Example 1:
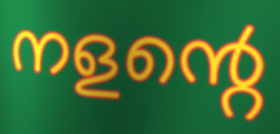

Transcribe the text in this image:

നളന്റെ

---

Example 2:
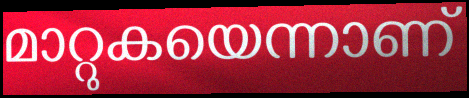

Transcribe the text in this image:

മാറ്റുകയെന്നാണ്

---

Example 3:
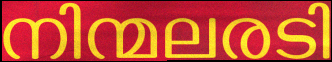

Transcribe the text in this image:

നിന്മലരടി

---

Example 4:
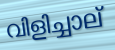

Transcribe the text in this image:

വിളിച്ചാല്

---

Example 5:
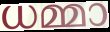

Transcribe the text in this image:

ധമ്മാ